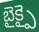
బైక్పై